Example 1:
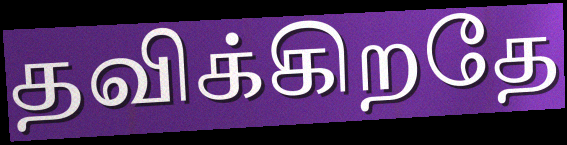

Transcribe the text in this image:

தவிக்கிறதே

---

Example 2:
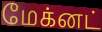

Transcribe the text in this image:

மேக்னட்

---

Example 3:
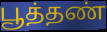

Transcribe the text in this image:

பூத்தண்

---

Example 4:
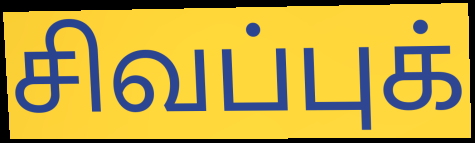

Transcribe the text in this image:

சிவப்புக்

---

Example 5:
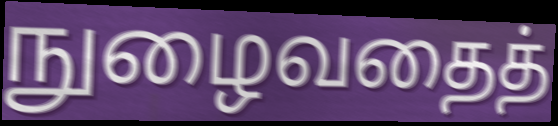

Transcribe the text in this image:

நுழைவதைத்